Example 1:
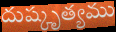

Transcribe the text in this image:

దుష్కృత్యము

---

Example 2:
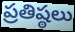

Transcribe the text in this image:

ప్రతిష్ఠలు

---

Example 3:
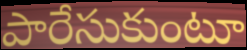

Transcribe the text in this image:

పారేసుకుంటూ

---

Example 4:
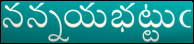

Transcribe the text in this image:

నన్నయభట్టుఁ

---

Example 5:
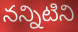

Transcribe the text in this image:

నన్నిటిని